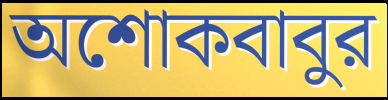
অশোকবাবুর